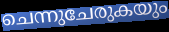
ചെന്നുചേരുകയും